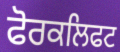
ਫੋਰਕਲਿਫਟ